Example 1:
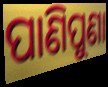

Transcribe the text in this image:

ପାଣିପୁଣା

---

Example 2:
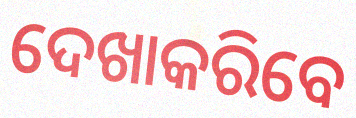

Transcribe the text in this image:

ଦେଖାକରିବେ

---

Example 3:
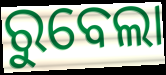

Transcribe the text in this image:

ରୁବେଲା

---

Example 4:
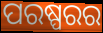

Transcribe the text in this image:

ପରଷ୍ପରର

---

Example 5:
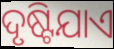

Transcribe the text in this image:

ଦୃଷ୍ଟିଯାଏ